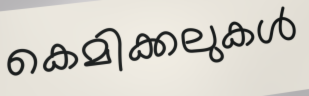
കെമിക്കലുകൾ